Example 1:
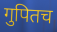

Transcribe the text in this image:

गुपितच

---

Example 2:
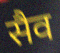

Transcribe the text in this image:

सैव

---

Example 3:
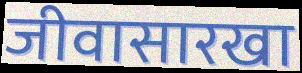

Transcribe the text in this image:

जीवासारखा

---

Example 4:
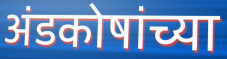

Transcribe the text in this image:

अंडकोषांच्या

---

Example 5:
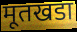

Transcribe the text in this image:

मूतखडा